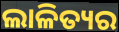
ଲାଳିତ୍ୟର